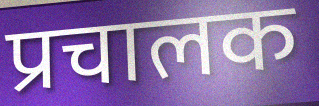
प्रचालक